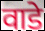
वाडे